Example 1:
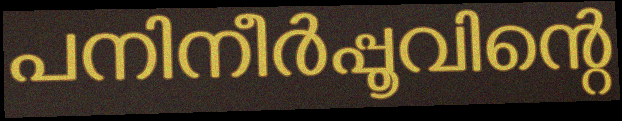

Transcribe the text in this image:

പനിനീർപ്പൂവിന്റെ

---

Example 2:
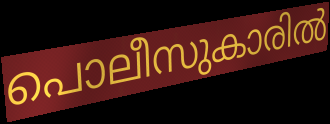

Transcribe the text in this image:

പൊലീസുകാരിൽ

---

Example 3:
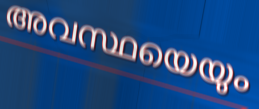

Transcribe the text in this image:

അവസ്ഥയെയും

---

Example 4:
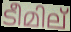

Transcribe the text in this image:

ടീമില്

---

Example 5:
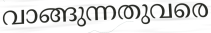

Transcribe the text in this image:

വാങ്ങുന്നതുവരെ